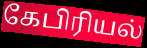
கேபிரியல்